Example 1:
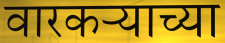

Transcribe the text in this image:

वारकऱ्याच्या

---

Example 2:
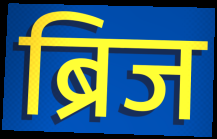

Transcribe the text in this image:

ब्रिज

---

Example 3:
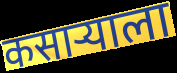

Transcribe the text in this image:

कसाऱ्याला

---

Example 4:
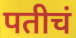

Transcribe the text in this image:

पतीचं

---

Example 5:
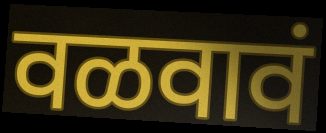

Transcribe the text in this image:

वळवावं